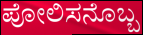
ಪೋಲಿಸನೊಬ್ಬ